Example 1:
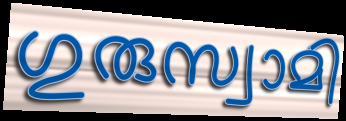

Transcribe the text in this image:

ഗുരുസ്വാമി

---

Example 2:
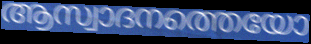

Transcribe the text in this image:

ആസ്വാദനത്തെയോ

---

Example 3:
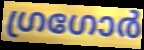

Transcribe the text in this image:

ഗ്രഗോർ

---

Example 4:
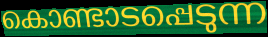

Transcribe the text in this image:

കൊണ്ടാടപ്പെടുന്ന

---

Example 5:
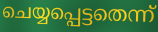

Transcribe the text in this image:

ചെയ്യപ്പെട്ടതെന്ന്